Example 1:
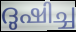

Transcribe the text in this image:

ദുഷിച്ച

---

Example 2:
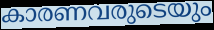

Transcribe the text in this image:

കാരണവരുടെയും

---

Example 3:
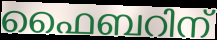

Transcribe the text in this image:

ഫൈബറിന്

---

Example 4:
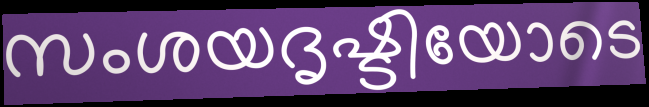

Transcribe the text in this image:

സംശയദൃഷ്ടിയോടെ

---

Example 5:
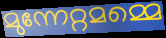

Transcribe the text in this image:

മുന്നേറ്റമമ്മെ